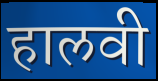
हालवी